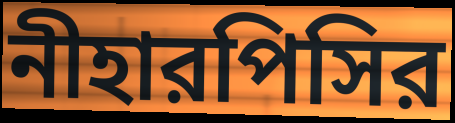
নীহারপিসির